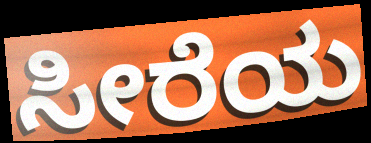
ಸೀರೆಯ